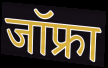
जॉफ्रा